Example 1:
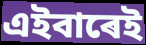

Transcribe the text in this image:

এইবাৰেই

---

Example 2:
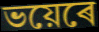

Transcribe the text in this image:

ভয়েৰে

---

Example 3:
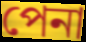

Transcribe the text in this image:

পেনা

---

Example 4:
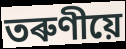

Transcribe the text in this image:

তৰুণীয়ে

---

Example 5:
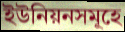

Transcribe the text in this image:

ইউনিয়নসমূহে